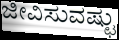
ಜೀವಿಸುವಷ್ಟು